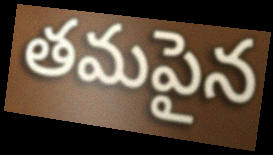
తమపైన